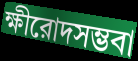
ক্ষীরোদসম্ভবা